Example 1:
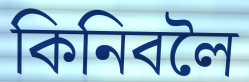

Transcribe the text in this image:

কিনিবলৈ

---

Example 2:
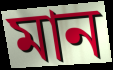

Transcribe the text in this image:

মান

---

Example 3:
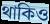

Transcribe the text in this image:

থাকিও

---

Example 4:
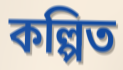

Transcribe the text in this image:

কল্পিত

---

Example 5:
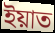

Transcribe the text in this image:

ইয়াত